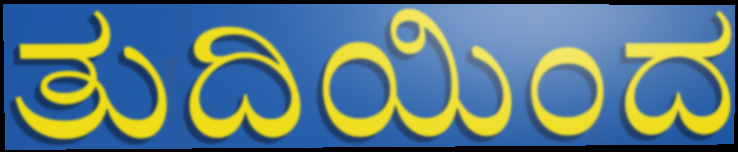
ತುದಿಯಿಂದ